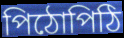
পিঠোপিঠি